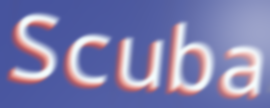
Scuba